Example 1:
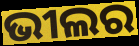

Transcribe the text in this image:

ଭୀଲର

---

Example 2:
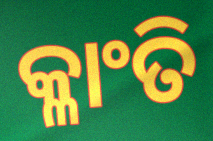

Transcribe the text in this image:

କ୍ଳାଂତି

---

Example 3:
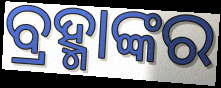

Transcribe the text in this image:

ବ୍ରହ୍ମାଙ୍କର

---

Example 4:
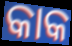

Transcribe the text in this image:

କାକ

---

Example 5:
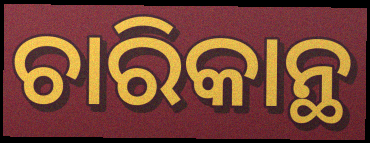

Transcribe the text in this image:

ଚାରିକାନ୍ଥ